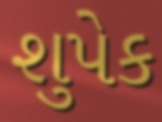
શુપેક